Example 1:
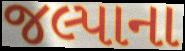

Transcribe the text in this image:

જલ્પાના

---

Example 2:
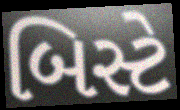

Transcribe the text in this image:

બિસ્ટે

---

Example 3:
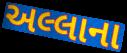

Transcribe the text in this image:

અલ્લાના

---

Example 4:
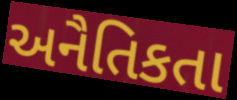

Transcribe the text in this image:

અનૈતિકતા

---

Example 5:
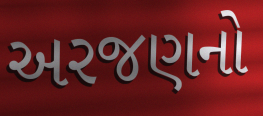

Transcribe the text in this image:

અરજણનો